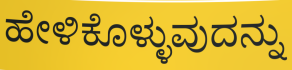
ಹೇಳಿಕೊಳ್ಳುವುದನ್ನು